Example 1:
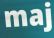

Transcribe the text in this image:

maj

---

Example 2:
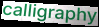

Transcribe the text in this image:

calligraphy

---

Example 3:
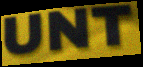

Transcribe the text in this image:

UNT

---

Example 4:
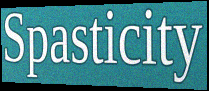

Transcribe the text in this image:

Spasticity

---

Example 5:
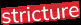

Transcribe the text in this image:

stricture